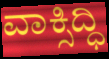
ವಾಕ್ಸಿದ್ಧಿ